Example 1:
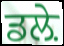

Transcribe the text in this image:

ਡਲ਼ੇ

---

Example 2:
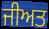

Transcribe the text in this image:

ਜੀਅਤ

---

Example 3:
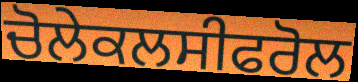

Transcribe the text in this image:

ਚੋਲੇਕਲਸੀਫਰੋਲ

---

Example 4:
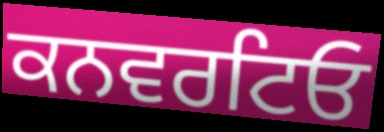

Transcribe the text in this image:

ਕਨਵਰਟਿਓ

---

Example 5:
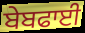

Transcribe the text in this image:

ਬੇਬਫਾਈ